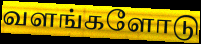
வளங்களோடு